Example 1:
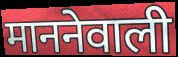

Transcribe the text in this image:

माननेवाली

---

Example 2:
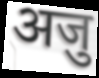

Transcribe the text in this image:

अजु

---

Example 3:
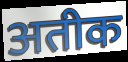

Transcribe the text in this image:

अतीक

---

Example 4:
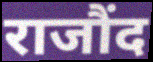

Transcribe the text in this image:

राजौंद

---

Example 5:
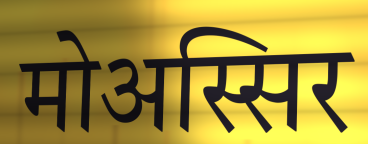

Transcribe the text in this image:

मोअस्सिर